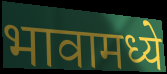
भावामध्ये